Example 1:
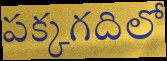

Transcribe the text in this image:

పక్కగదిలో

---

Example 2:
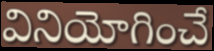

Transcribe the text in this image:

వినియోగించే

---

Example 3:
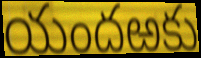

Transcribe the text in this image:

యందఱకు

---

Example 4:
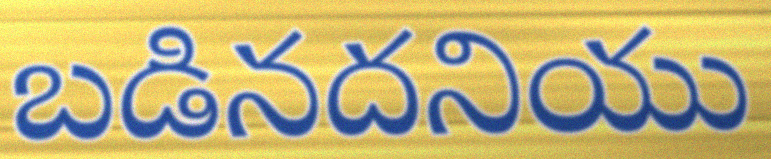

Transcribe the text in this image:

బడినదనియు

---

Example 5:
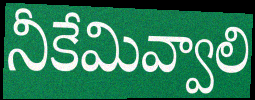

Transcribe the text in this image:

నీకేమివ్వాలి